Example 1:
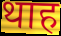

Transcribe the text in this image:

थाह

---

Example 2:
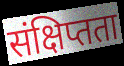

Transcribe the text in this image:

संक्षिप्तता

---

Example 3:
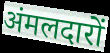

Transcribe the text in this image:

अंमलदारों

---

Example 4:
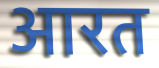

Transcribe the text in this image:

आरत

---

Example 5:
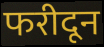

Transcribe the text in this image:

फरीदून